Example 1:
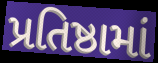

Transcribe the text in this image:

પ્રતિષ્ઠામાં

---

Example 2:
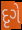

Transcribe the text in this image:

દૃગે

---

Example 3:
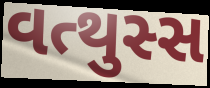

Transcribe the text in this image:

વત્થુસ્સ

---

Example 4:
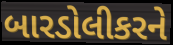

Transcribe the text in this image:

બારડોલીકરને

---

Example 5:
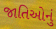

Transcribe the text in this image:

જાતિઓનું